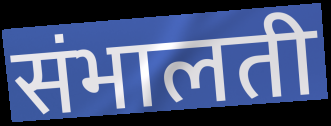
संभालती